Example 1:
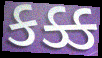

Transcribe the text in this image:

કક્ક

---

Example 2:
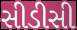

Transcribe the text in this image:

સીડીસી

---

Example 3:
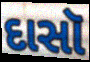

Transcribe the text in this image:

દાસૉ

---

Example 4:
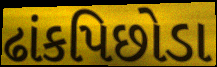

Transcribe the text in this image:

ઢાંકપિછોડા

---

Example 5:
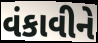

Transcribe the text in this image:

વંકાવીને